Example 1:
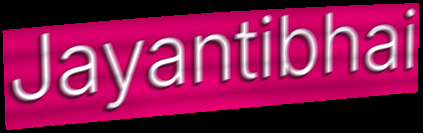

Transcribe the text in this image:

Jayantibhai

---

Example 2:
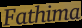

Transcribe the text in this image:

Fathima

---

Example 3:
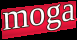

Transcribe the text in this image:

moga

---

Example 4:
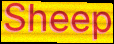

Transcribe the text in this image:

Sheep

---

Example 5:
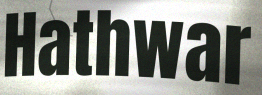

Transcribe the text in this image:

Hathwar